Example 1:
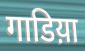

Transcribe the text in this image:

गाडिय़ा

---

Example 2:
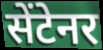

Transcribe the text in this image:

सेंटेनर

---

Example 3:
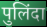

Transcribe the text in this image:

पुलिंदा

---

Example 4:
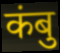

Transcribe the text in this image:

कंबु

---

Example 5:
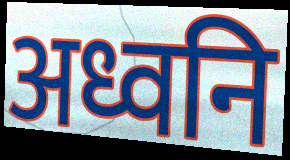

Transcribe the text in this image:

अध्वनि